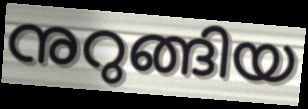
നുറുങ്ങിയ